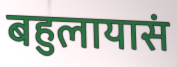
बहुलायासं